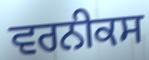
ਵਰਨੀਕਸ